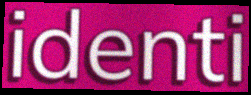
identi